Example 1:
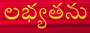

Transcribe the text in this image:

లభ్యతను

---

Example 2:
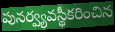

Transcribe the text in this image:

పునర్వ్యవస్థీకరించిన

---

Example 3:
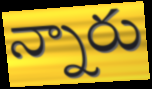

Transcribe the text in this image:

న్నారు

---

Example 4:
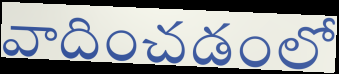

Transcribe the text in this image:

వాదించడంలో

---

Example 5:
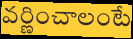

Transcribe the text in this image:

వర్ణించాలంటే